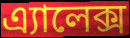
এ্যালেক্স